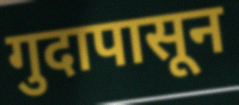
गुदापासून